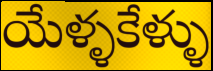
యేళ్ళకేళ్ళు